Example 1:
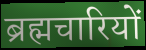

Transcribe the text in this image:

ब्रह्मचारियों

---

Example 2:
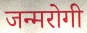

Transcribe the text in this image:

जन्मरोगी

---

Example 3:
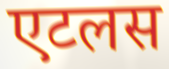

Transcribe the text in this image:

एटलस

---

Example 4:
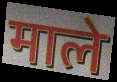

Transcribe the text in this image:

माले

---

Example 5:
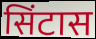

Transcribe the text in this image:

सिंटास